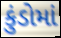
કુંડોમાં